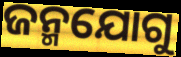
ଜନ୍ମଯୋଗୁ